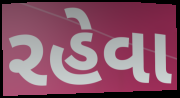
રહેવા